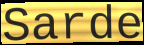
Sarde